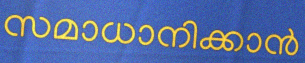
സമാധാനിക്കാൻ